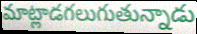
మాట్లాడగలుగుతున్నాడు